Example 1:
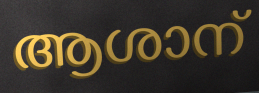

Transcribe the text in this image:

ആശാന്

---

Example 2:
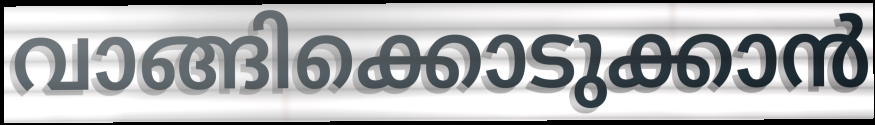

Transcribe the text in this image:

വാങ്ങിക്കൊടുക്കാൻ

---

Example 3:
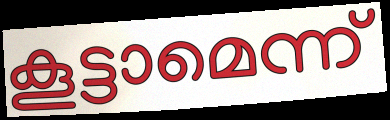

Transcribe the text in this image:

കൂട്ടാമെന്ന്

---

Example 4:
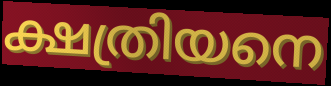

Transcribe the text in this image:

ക്ഷത്രിയനെ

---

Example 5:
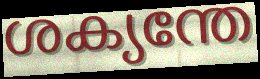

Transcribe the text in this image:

ശക്യന്തേ